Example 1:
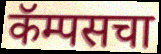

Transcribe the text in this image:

कॅम्पसचा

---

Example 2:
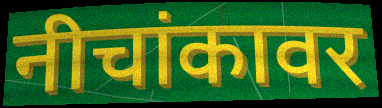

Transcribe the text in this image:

नीचांकावर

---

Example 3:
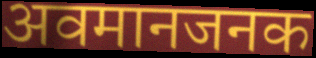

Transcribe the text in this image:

अवमानजनक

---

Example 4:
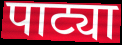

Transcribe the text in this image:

पाट्या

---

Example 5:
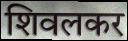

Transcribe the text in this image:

शिवलकर